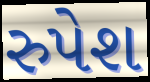
રુપેશ